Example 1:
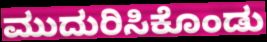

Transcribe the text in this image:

ಮುದುರಿಸಿಕೊಂಡು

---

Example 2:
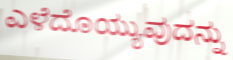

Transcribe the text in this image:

ಎಳೆದೊಯ್ಯುವುದನ್ನು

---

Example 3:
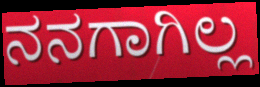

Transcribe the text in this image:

ನನಗಾಗಿಲ್ಲ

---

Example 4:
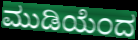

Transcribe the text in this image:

ಮುಡಿಯೆಂದ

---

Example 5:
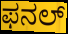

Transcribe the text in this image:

ಫನಲ್